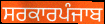
ਸਰਕਾਰਪੰਜਾਬ